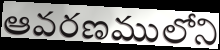
ఆవరణములోని